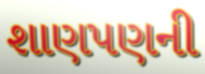
શાણપણની